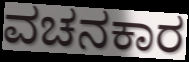
ವಚನಕಾರ